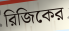
রিজিকের